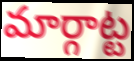
మార్గాట్ట